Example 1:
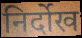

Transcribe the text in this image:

निर्दोख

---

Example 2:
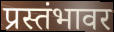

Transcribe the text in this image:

प्रस्तंभावर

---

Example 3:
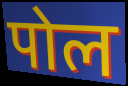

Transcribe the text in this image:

पोल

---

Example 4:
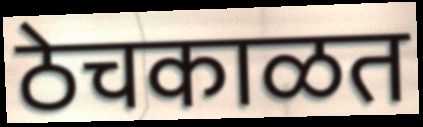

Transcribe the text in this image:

ठेचकाळत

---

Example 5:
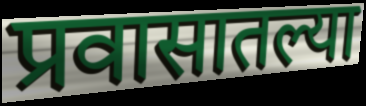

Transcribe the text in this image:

प्रवासातल्या